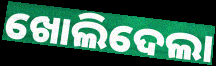
ଖୋଲିଦେଲା